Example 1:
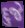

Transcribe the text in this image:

દુજે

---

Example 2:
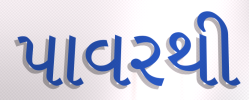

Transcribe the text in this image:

પાવરથી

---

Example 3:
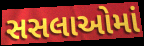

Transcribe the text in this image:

સસલાઓમાં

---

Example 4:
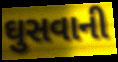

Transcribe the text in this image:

ઘુસવાની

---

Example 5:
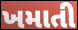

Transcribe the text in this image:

ખમાતી